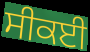
ਸੀਕਈ